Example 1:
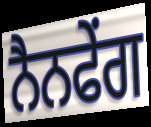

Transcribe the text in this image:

ਨੈਨਫੇਂਗ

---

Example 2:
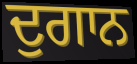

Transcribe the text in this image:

ਦੁਗਾਨ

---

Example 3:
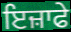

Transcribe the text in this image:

ਇਜ਼ਾਫੇ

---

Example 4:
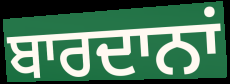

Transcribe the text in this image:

ਬਾਰਦਾਨਾਂ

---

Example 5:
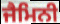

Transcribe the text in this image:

ਜੈਮਿਨੀ